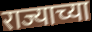
राज्याच्या